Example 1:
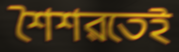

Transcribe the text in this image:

শৈশৱতেই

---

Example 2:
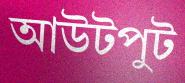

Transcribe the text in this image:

আউটপুট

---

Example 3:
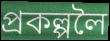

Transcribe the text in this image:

প্ৰকল্পলৈ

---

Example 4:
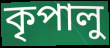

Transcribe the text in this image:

কৃপালু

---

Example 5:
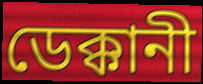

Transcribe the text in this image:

ডেক্কানী